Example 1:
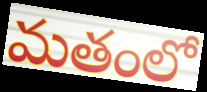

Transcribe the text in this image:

మతంలో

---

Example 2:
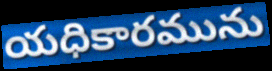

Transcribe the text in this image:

యధికారమును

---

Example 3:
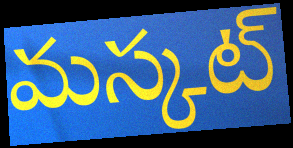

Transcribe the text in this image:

మస్కట్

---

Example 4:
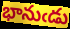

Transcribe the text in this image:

భానుఁడు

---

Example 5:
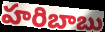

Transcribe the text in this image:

హరిబాబు